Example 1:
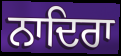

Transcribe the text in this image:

ਨਾਦਿਰਾ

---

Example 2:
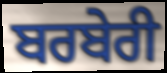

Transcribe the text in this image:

ਬਰਬੇਰੀ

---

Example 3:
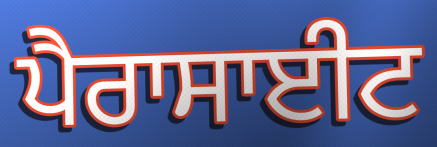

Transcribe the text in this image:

ਪੈਰਾਸਾਈਟ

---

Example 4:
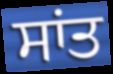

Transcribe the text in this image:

ਸਾਂਤ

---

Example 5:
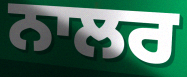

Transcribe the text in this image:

ਨਾਲਰ